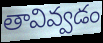
తావివ్వడం